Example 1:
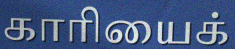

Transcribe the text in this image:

காரியைக்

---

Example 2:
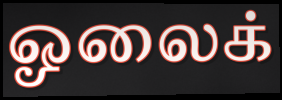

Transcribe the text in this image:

ஓலைக்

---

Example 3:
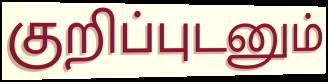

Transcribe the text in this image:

குறிப்புடனும்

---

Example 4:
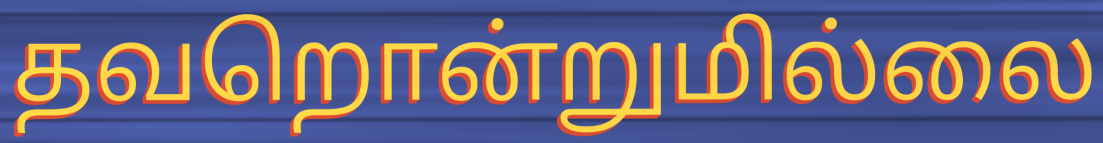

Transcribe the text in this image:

தவறொன்றுமில்லை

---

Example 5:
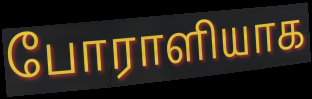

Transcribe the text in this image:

போராளியாக